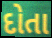
દોતા